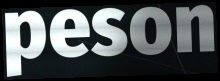
peson